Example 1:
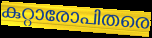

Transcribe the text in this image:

കുറ്റാരോപിതരെ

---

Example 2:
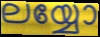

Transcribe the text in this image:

ലയ്യോ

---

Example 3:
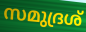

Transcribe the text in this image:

സമുദ്രശ്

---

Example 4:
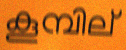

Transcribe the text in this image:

കൂമ്പില്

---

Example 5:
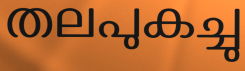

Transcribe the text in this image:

തലപുകച്ചു